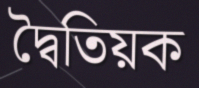
দ্বৈতিয়ক